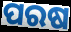
ପରଷ